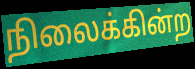
நிலைக்கின்ற